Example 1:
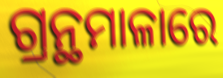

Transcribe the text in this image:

ଗ୍ରନ୍ଥମାଳାରେ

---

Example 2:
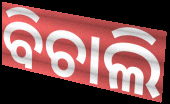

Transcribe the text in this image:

ବିଚାଲି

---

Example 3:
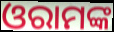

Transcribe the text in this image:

ଓରାମଙ୍କ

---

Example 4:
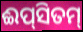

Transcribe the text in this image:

ଈପ୍‌ସିତମ୍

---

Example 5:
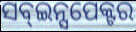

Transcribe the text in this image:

ସବ୍ଇନ୍ସପେକ୍ଟର